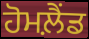
ਹੋਮਲ਼ੈਂਡ